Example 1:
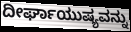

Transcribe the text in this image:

ದೀರ್ಘಾಯುಷ್ಯವನ್ನು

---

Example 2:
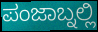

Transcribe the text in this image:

ಪಂಜಾಬ್ನಲ್ಲಿ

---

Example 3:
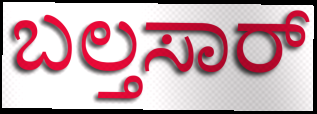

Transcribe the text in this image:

ಬಲ್ತಸಾರ್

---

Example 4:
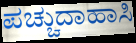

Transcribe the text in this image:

ಪಚ್ಚುದಾಹಾಸಿ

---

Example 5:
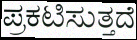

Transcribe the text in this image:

ಪ್ರಕಟಿಸುತ್ತದೆ